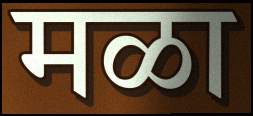
मळा